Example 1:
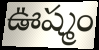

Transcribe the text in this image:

ఊష్మం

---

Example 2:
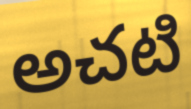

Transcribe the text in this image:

అచటి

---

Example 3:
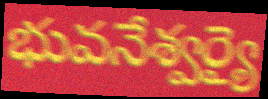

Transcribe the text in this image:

భువనేశ్వర్యై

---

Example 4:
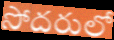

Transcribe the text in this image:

సోదరులో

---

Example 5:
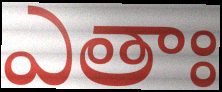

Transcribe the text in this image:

ఎతాః